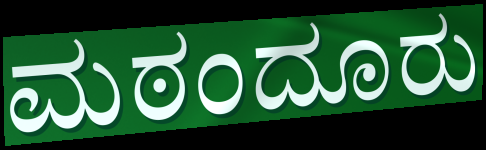
ಮಠಂದೂರು